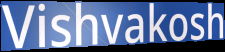
Vishvakosh